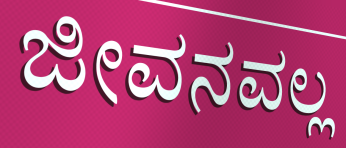
ಜೀವನವಲ್ಲ